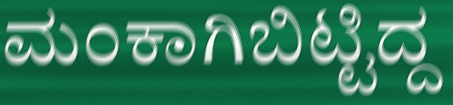
ಮಂಕಾಗಿಬಿಟ್ಟಿದ್ದ